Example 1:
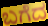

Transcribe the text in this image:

ಬಗೆದ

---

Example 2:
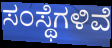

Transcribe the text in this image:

ಸಂಸ್ಥೆಗಳಿವೆ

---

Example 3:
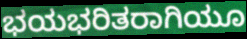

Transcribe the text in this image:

ಭಯಭರಿತರಾಗಿಯೂ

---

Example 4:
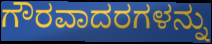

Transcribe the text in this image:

ಗೌರವಾದರಗಳನ್ನು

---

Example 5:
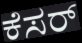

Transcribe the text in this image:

ಕೆಸರ್